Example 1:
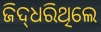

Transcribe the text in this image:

ଜିଦ୍‌ଧରିଥିଲେ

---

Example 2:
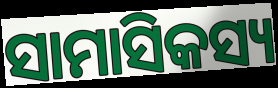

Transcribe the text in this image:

ସାମାସିକସ୍ୟ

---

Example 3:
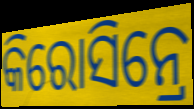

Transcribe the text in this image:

କିରୋସିନ୍ରେ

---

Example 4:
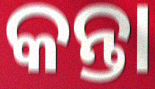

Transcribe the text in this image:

କନ୍ତା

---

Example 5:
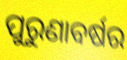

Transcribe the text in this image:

ପୁରୁଣାବର୍ଷର